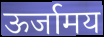
ऊर्जामय